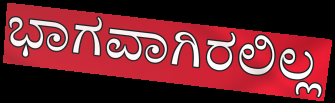
ಭಾಗವಾಗಿರಲಿಲ್ಲ